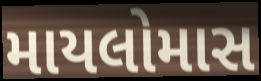
માયલોમાસ